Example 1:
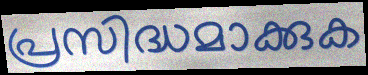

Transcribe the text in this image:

പ്രസിദ്ധമാക്കുക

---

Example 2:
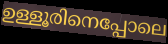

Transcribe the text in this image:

ഉള്ളൂരിനെപ്പോലെ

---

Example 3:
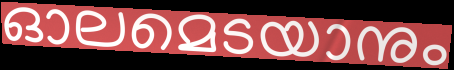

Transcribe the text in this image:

ഓലമെടയാനും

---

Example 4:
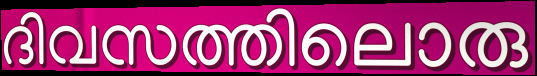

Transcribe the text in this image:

ദിവസത്തിലൊരു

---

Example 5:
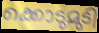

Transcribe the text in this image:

ക്കൊടുമുടി